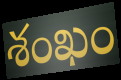
శంఖం